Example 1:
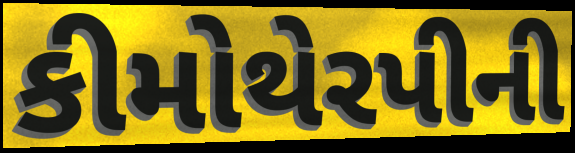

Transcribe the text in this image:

કીમોથેરપીની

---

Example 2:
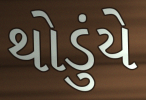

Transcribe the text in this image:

થોડુંયે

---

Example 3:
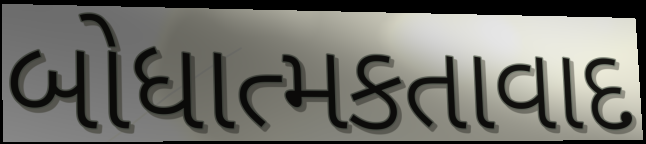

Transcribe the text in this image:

બોધાત્મકતાવાદ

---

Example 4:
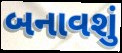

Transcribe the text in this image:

બનાવશું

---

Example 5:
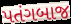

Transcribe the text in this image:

પતંગબાજ